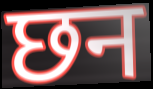
छन